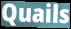
Quails